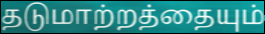
தடுமாற்றத்தையும்